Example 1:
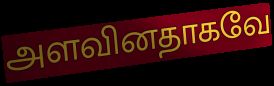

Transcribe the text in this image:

அளவினதாகவே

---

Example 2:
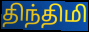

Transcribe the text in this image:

திந்திமி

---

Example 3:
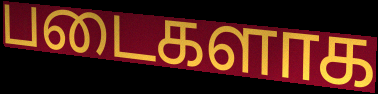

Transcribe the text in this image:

படைகளாக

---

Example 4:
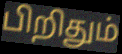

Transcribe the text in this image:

பிறிதும்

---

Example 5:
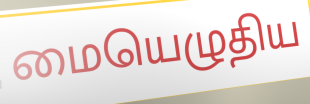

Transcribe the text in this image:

மையெழுதிய